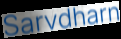
Sarvdharn